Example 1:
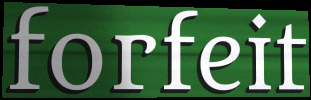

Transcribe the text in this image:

forfeit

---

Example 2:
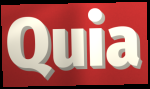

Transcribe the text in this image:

Quia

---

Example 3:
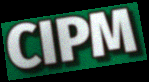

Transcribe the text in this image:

CIPM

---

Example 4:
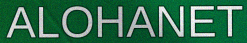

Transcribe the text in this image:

ALOHANET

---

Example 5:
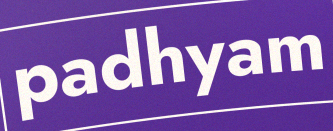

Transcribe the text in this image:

padhyam